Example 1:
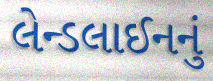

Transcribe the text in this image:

લેન્ડલાઈનનું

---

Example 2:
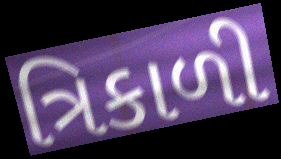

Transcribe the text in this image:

ત્રિકાળી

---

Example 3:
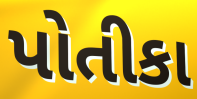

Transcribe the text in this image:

પોતીકા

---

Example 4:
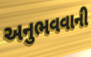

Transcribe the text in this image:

અનુભવવાની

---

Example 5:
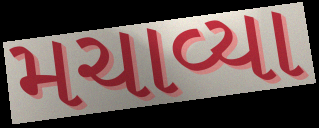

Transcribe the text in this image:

મચાવ્યા